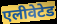
एलीवेटेड